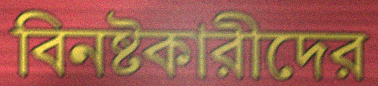
বিনষ্টকারীদের